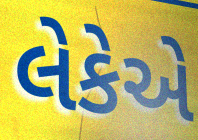
લેકેએ